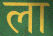
ला